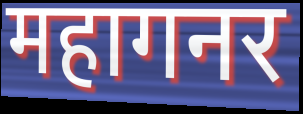
महागनर